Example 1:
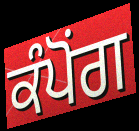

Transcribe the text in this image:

ਕੰਪੋਂਗ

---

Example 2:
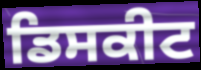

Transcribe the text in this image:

ਡਿਸਕੀਟ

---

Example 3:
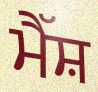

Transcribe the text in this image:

ਮੈੱਸ਼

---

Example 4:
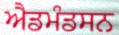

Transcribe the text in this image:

ਐਡਮੰਡਸਨ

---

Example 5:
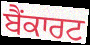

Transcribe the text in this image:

ਬੈਂਕਾਰਟ